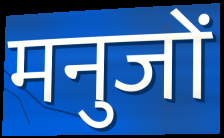
मनुजों